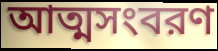
আত্মসংবরণ